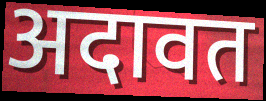
अदावत